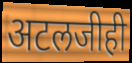
अटलजीही